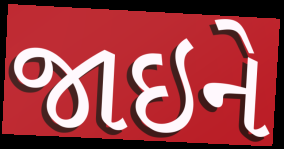
જાઇને